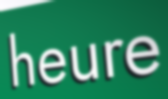
heure